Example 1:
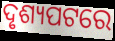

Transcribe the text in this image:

ଦୃଶ୍ୟପଟରେ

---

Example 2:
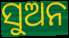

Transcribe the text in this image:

ସୁଅନ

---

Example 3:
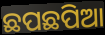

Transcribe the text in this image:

ଛପଛପିଆ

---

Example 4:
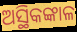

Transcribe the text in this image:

ଅସ୍ଥିକଙ୍କାଳ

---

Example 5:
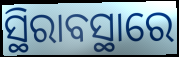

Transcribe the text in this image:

ସ୍ଥିରାବସ୍ଥାରେ